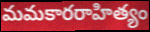
మమకారరాహిత్యం